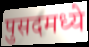
पुसदमध्ये